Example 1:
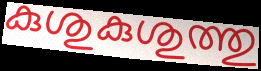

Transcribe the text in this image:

കുശുകുശുത്തു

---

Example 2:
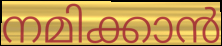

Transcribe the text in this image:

നമിക്കാൻ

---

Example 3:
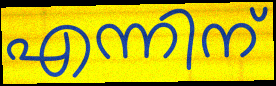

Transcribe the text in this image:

എന്നിന്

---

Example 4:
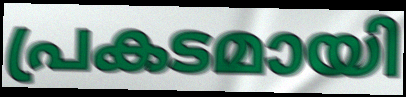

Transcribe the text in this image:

പ്രകടമായി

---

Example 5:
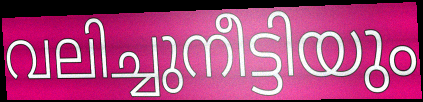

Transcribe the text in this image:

വലിച്ചുനീട്ടിയും